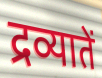
द्रव्यातें